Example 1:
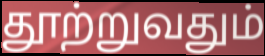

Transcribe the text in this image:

தூற்றுவதும்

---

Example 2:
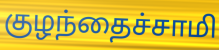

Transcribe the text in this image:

குழந்தைச்சாமி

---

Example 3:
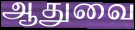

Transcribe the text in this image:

ஆதுவை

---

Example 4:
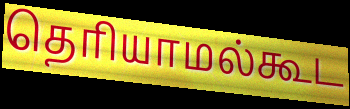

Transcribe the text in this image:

தெரியாமல்கூட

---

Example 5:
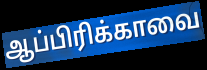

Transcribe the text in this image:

ஆப்பிரிக்காவை